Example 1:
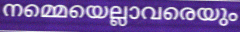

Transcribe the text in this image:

നമ്മെയെല്ലാവരെയും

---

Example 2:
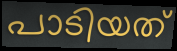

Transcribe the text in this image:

പാടിയത്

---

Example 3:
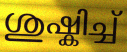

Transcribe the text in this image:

ശുഷ്കിച്ച്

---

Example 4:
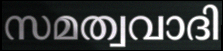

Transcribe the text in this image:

സമത്വവാദി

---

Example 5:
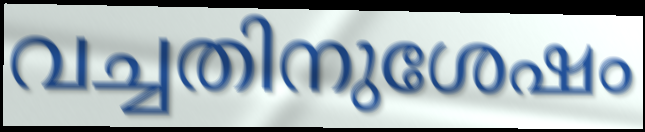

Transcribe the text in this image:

വച്ചതിനുശേഷം